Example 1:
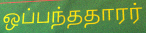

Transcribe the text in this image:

ஒப்பந்ததாரர்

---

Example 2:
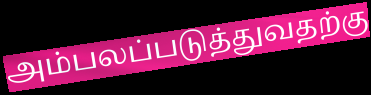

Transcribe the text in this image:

அம்பலப்படுத்துவதற்கு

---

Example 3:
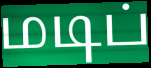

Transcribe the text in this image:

மடிப்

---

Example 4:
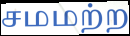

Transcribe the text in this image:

சமமற்ற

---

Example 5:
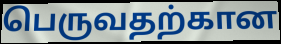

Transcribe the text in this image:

பெருவதற்கான